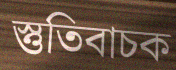
স্তুতিবাচক